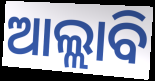
ଆଲ୍ଲାବି